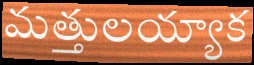
మత్తులయ్యాక